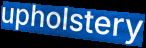
upholstery